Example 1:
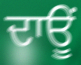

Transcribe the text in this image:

ਦਾਊਂ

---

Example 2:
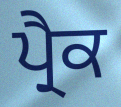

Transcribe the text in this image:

ਪ੍ਰੈਕ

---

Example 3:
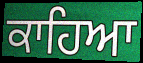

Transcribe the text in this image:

ਕਾਹਿਆ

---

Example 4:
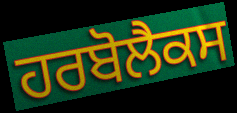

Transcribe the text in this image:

ਹਰਬੋਲੈਕਸ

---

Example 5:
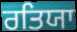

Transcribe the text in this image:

ਰਤਿਯਾ